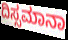
ದಿಸ್ಸಮಾನಾ